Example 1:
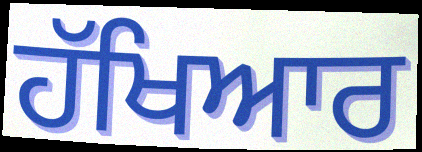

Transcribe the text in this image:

ਹੱਖਿਆਰ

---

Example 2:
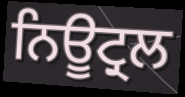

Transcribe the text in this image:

ਨਿਊਟ੍ਰਲ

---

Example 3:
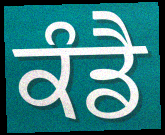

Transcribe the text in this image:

ਕੰਡੈ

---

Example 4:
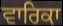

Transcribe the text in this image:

ਵਾਰਿਕਾ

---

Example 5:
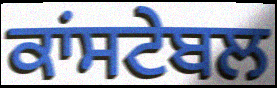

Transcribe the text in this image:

ਕਾਂਸਟੇਬਲ